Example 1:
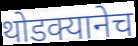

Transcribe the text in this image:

थोडक्यानेच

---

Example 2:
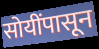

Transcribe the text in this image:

सोयींपासून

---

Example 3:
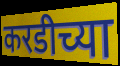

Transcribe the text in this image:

करडीच्या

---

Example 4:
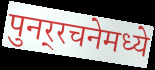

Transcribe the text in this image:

पुनर्रचनेमध्ये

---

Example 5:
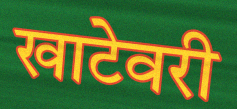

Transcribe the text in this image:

खाटेवरी